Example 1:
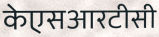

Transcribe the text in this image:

केएसआरटीसी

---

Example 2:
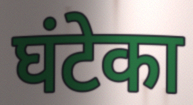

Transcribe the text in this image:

घंटेका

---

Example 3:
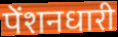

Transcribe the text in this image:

पेंशनधारी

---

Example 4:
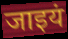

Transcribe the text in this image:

जाइयं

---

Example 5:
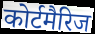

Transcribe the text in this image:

कोर्टमैरिज